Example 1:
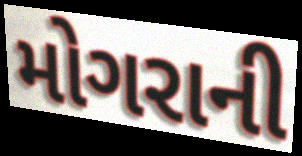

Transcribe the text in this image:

મોગરાની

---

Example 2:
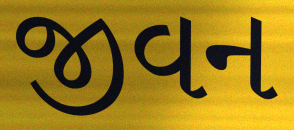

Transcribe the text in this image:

જીવન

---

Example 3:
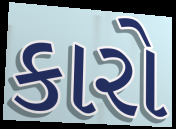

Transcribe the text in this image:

કારો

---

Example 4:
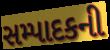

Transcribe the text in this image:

સમ્પાદકની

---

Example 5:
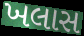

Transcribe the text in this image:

ખલાસ